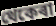
থেকেৰা